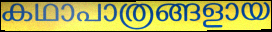
കഥാപാത്രങ്ങളായ